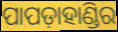
ପାପଡ଼ାହାଣ୍ଡିର